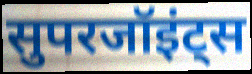
सुपरजॉइंट्स